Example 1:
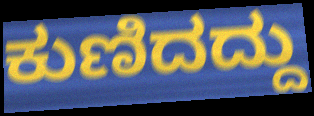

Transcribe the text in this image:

ಕುಣಿದದ್ದು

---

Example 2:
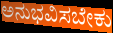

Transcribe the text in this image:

ಅನುಭವಿಸಬೇಕು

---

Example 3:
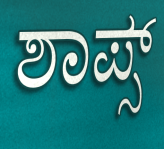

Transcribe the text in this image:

ಶಾಪ್ಸ್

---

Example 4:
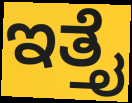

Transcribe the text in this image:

ಇತ್ತೈ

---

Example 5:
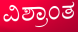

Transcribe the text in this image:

ವಿಶ್ರಾಂತ